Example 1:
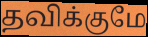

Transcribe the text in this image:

தவிக்குமே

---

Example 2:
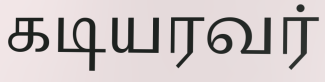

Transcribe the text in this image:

கடியரவர்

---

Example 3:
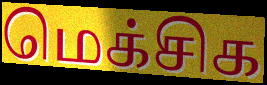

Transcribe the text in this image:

மெக்சிக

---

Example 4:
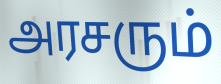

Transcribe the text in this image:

அரசரும்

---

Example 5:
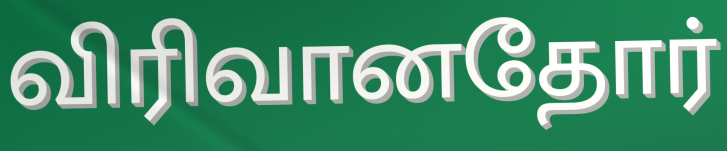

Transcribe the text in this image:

விரிவானதோர்